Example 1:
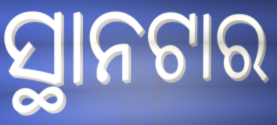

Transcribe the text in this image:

ସ୍ଥାନଟାର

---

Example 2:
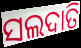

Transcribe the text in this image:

ସଲଦାତି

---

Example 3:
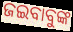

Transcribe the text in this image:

ଜଇବାବୁଙ୍କ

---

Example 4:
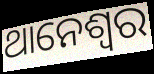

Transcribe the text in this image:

ଥାନେଶ୍ୱର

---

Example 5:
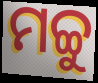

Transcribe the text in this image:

ମଚ୍ଚୁ